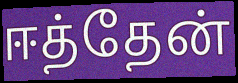
ஈத்தேன்